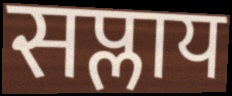
सप्लाय